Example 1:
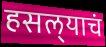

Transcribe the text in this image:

हसल्याचं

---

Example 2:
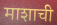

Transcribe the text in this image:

माशाची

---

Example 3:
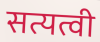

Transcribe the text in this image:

सत्यत्वी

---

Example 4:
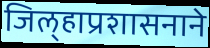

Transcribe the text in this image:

जिल्हाप्रशासनाने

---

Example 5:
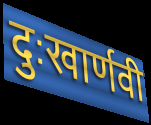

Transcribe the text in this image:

दुःखार्णवी